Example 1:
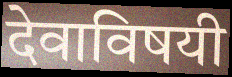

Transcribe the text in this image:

देवाविषयी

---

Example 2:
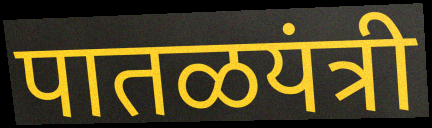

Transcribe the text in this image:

पातळयंत्री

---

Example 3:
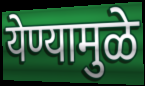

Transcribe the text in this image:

येण्यामुळे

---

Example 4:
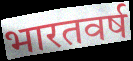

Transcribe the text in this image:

भारतवर्ष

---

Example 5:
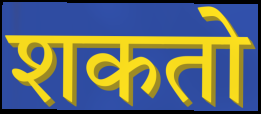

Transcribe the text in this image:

शकतो